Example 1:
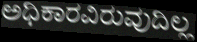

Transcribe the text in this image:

ಅಧಿಕಾರವಿರುವುದಿಲ್ಲ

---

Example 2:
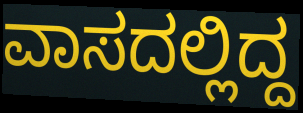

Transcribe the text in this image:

ವಾಸದಲ್ಲಿದ್ದ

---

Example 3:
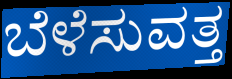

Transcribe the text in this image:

ಬೆಳೆಸುವತ್ತ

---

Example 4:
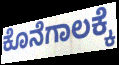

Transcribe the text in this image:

ಕೊನೆಗಾಲಕ್ಕೆ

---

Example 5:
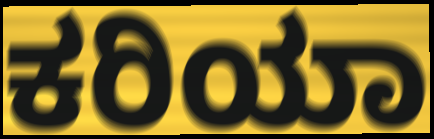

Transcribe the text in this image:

ಕರಿಯಾ